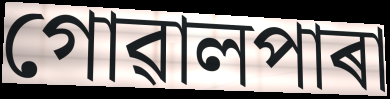
গোৱালপাৰা